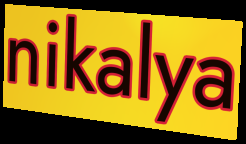
nikalya